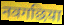
नवगछिया